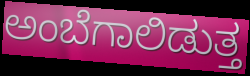
ಅಂಬೆಗಾಲಿಡುತ್ತ